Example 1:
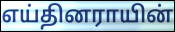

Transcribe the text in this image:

எய்தினராயின்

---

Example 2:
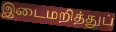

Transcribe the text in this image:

இடைமறித்துப்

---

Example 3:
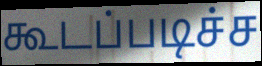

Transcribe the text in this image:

கூடப்படிச்ச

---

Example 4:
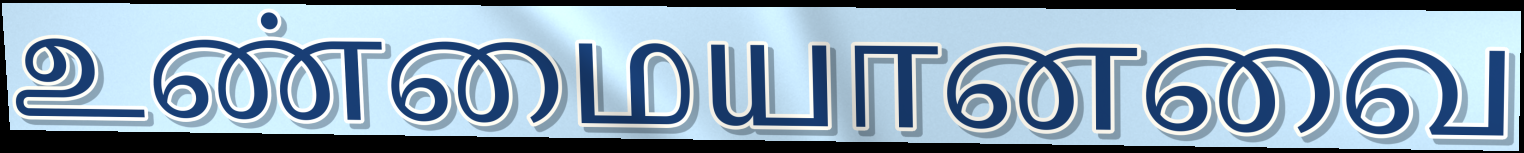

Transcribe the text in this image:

உண்மையானவை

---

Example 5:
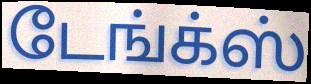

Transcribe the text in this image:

டேங்க்ஸ்